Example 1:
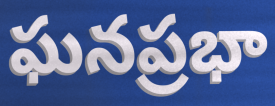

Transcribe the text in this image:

ఘనప్రభా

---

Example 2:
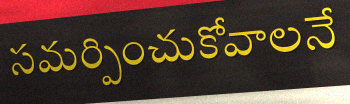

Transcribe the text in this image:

సమర్పించుకోవాలనే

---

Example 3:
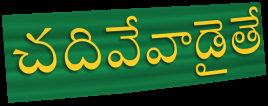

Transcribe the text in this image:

చదివేవాడైతే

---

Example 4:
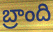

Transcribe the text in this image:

బ్రాంది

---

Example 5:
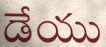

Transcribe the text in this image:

డేయు